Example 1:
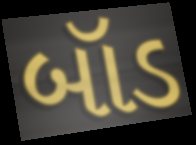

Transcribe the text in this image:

બૉડ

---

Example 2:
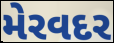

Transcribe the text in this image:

મેરવદર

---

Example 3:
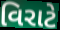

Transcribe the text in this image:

વિરાટે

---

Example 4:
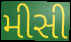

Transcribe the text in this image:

મીસી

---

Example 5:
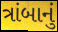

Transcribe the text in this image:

ત્રાંબાનું